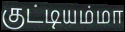
குட்டியம்மா